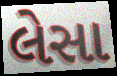
લેસા